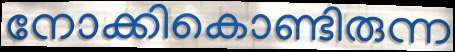
നോക്കികൊണ്ടിരുന്ന